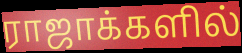
ராஜாக்களில்